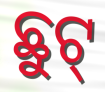
ଛୁଟ୍